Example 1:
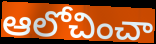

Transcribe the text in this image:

ఆలోచించా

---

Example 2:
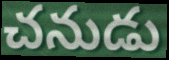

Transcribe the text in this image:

చనుడు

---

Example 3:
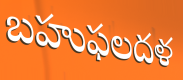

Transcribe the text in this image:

బహుఫలదళ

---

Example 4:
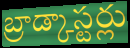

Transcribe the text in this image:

బ్రాడ్కాస్టర్లు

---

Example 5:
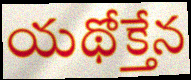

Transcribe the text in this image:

యథోక్తేన